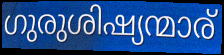
ഗുരുശിഷ്യന്മാര്